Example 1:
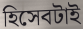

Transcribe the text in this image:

হিসেবটাই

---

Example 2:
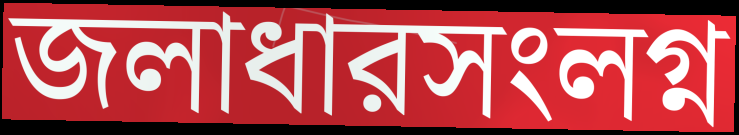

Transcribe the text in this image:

জলাধারসংলগ্ন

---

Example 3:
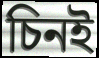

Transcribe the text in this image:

চিনই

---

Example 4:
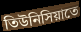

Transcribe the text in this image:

তিউনিসিয়াতে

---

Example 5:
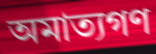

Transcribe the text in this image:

অমাত্যগণ